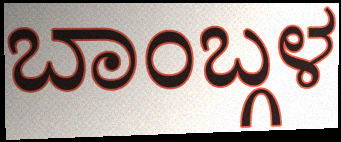
ಬಾಂಬ್ಗಳ